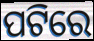
ପଟିରେ